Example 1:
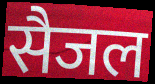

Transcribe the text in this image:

सैजल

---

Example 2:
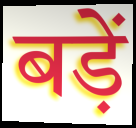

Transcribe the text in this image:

बड़ें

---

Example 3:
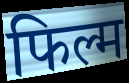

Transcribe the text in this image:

फिल्म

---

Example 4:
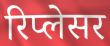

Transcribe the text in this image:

रिप्लेसर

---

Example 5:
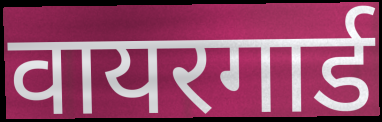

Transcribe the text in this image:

वायरगार्ड